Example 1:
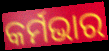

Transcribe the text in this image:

କର୍ମଭାର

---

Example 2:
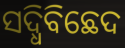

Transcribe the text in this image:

ସଦ୍ଧିବିଛେଦ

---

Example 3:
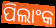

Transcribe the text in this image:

ପିଲାଂକ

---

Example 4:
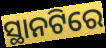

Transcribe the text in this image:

ସ୍ଥାନଟିରେ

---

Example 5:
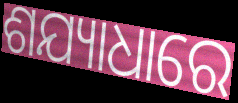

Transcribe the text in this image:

ଶଯ୍ୟାଧାରେ